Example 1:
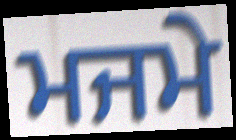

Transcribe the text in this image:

ਮਜਮੇ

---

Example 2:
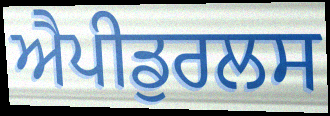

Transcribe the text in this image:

ਐਪੀਡੁਰਲਸ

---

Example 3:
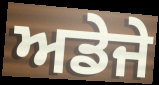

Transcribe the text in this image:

ਅਡੇਜੇ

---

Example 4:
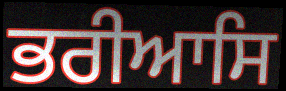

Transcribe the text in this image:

ਭਰੀਆਸਿ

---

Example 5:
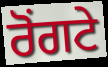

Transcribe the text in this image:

ਰੋੰਗਟੇ